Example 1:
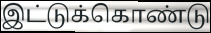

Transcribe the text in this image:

இட்டுக்கொண்டு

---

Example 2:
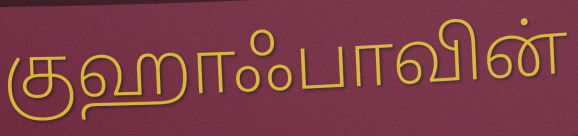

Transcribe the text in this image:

குஹாஃபாவின்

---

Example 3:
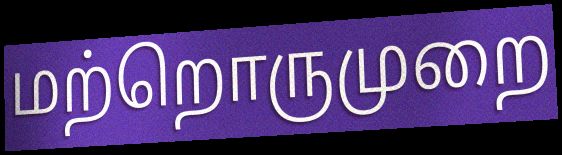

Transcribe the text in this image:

மற்றொருமுறை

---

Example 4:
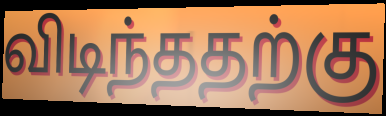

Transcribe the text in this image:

விடிந்ததற்கு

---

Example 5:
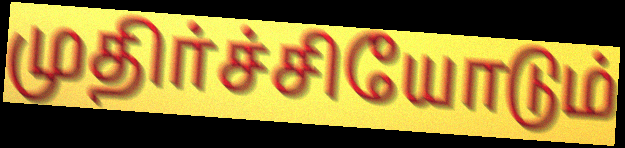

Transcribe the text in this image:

முதிர்ச்சியோடும்